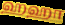
ஹஹா